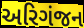
અરિગંજન